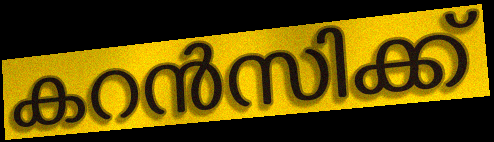
കറൻസിക്ക്